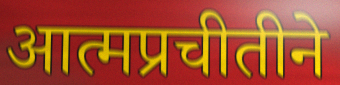
आत्मप्रचीतीने